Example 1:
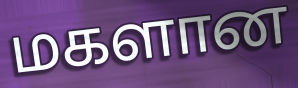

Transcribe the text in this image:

மகளான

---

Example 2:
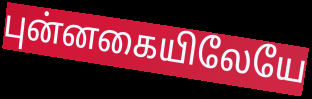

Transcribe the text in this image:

புன்னகையிலேயே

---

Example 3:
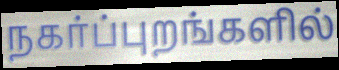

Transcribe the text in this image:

நகர்ப்புறங்களில்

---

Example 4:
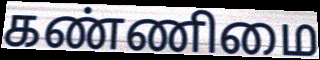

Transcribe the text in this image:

கண்ணிமை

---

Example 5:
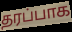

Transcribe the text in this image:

தரப்பாக